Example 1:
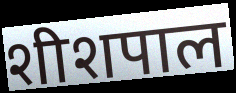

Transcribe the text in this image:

शीशपाल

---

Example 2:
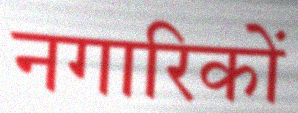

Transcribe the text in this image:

नगारिकों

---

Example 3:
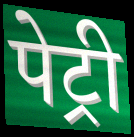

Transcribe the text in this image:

पेट्री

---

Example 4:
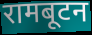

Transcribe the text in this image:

रामबूटन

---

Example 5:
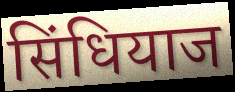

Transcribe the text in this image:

सिंधियाज